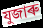
যুজাৰু